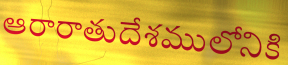
ఆరారాతుదేశములోనికి